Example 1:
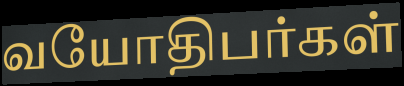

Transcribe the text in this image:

வயோதிபர்கள்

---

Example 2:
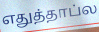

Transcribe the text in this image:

எதுத்தாப்ல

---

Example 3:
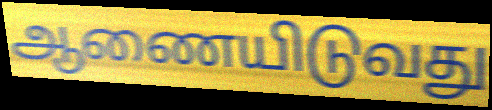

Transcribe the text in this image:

ஆணையிடுவது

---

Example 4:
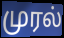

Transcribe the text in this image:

முரல்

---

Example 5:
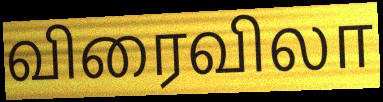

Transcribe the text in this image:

விரைவிலா